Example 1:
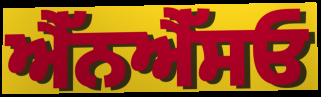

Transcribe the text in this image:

ਐੱਨਐੱਸਓ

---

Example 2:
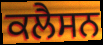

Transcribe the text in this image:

ਕਲੈਸਨ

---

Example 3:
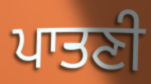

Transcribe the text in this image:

ਪਾਤਣੀ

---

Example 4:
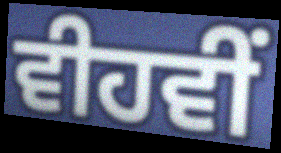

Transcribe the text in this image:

ਵੀਹਵੀਂ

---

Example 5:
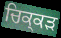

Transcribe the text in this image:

ਚਿਕ੍ਕੜ